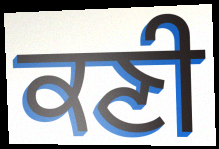
ਕਣੀ